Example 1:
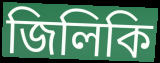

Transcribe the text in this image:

জিলিকি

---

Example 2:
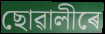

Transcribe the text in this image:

ছোৱালীৰে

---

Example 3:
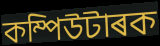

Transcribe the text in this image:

কম্পিউটাৰক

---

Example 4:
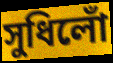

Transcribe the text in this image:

সুধিলোঁ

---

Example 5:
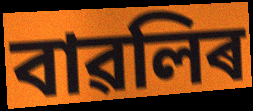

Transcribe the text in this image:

বাৱলিৰ